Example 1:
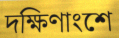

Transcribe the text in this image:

দক্ষিণাংশে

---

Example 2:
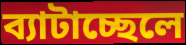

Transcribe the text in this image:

ব্যাটাচ্ছেলে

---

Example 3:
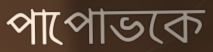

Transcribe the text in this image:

পাপোভকে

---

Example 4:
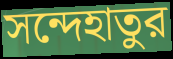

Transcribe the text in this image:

সন্দেহাতুর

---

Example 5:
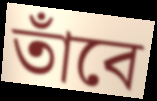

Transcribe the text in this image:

তাঁবে